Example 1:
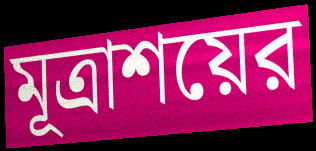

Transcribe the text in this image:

মূত্রাশয়ের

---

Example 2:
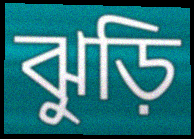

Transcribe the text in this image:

ঝুড়ি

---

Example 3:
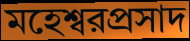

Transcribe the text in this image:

মহেশ্বরপ্রসাদ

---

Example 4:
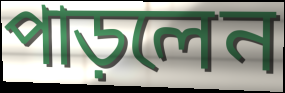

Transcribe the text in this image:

পাড়লেন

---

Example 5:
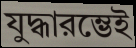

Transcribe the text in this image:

যুদ্ধারম্ভেই